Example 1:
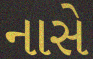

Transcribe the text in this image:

નાસે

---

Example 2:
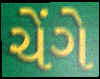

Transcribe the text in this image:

ચેંગે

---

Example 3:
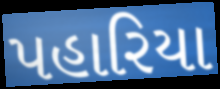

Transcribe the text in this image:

પહારિયા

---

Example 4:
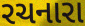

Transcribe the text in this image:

રચનારા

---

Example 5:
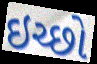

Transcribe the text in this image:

ઇચ્છો